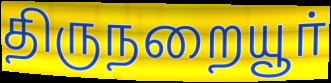
திருநறையூர்